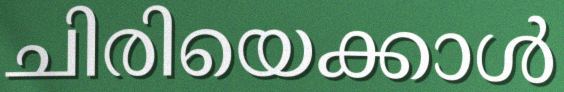
ചിരിയെക്കാൾ